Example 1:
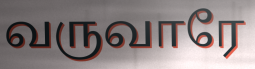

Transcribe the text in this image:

வருவாரே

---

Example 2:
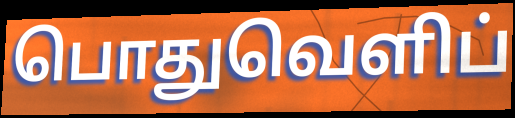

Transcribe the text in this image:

பொதுவெளிப்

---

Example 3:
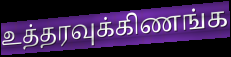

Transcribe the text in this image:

உத்தரவுக்கிணங்க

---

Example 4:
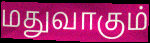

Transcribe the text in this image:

மதுவாகும்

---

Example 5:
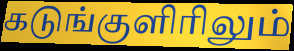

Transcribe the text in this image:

கடுங்குளிரிலும்